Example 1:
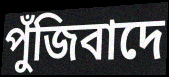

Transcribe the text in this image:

পুঁজিবাদে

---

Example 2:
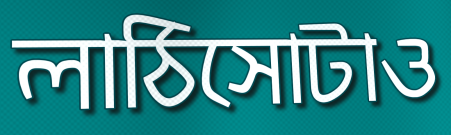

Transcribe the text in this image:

লাঠিসোটাও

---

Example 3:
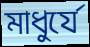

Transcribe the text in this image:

মাধুর্যে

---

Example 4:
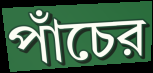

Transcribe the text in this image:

পাঁচের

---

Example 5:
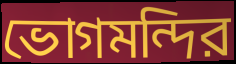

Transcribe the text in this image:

ভোগমন্দির